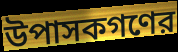
উপাসকগণের